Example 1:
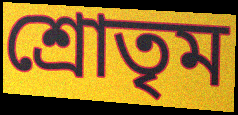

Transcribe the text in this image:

শ্রোতৃম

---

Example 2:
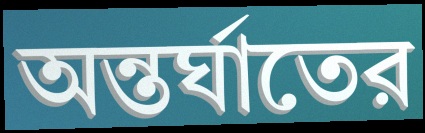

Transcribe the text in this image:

অন্তর্ঘাতের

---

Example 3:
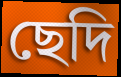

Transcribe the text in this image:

ছেদি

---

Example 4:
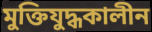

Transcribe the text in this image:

মুক্তিযুদ্ধকালীন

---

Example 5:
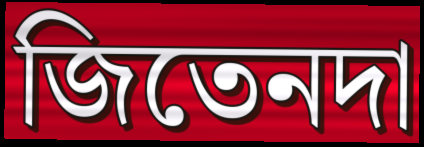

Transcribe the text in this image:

জিতেনদা